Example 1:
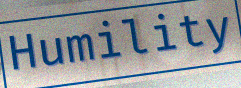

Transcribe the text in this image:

Humility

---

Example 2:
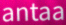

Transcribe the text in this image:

antaa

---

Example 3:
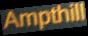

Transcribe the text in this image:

Ampthill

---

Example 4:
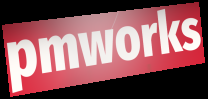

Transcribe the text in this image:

pmworks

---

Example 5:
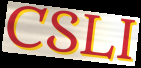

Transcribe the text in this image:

CSLI